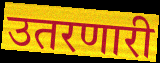
उतरणारी